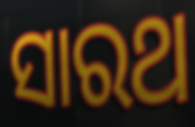
ସାରଥ